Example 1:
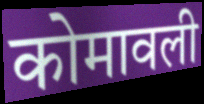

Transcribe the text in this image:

कोमावली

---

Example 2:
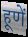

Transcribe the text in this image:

हूणें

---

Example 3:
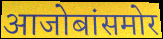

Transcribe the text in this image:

आजोबांसमोर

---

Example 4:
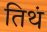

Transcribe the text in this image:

तिथं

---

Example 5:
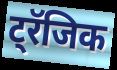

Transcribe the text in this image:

ट्रॅजिक